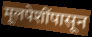
मूलपेशींपासून